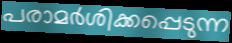
പരാമർശിക്കപ്പെടുന്ന